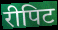
रीपिट